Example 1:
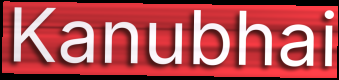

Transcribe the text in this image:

Kanubhai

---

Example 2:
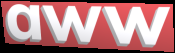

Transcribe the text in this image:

aww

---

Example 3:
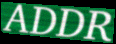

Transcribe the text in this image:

ADDR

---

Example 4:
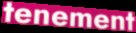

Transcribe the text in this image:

tenement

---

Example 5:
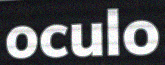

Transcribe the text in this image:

oculo